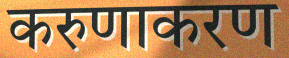
करुणाकरण